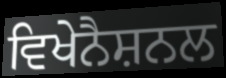
ਵਿਖੇਨੈਸ਼ਨਲ